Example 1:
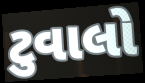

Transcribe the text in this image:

ટુવાલો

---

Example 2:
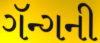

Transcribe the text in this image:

ગૅન્ગની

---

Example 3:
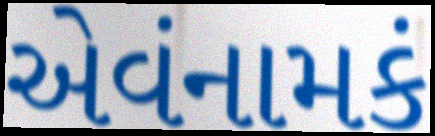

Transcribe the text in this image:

એવંનામકં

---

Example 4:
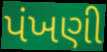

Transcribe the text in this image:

પંખણી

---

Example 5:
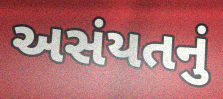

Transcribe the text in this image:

અસંયતનું